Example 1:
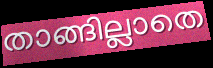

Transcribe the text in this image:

താങ്ങില്ലാതെ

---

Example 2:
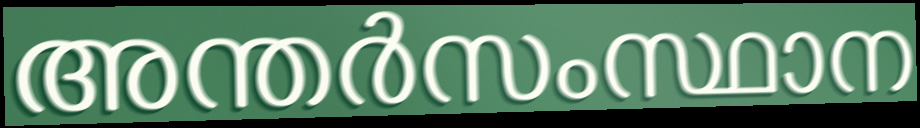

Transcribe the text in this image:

അന്തർസംസ്ഥാന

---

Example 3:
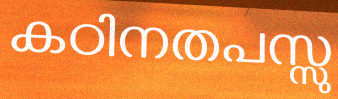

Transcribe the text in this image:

കഠിനതപസ്സു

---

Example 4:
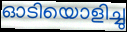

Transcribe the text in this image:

ഓടിയൊളിച്ചു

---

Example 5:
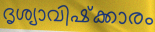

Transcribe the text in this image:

ദൃശ്യാവിഷ്‌ക്കാരം